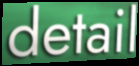
detail